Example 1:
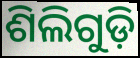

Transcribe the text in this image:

ଶିଲିଗୁଡ଼ି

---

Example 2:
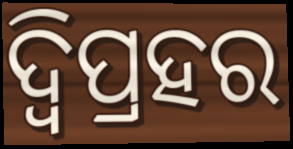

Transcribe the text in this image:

ଦ୍ବିପ୍ରହର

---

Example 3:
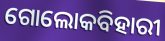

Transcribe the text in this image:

ଗୋଲୋକବିହାରୀ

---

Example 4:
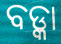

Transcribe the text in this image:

ବଡ୍କା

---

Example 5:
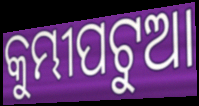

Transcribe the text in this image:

କୁମ୍ଭୀପଟୁଆ